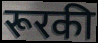
रूरकी